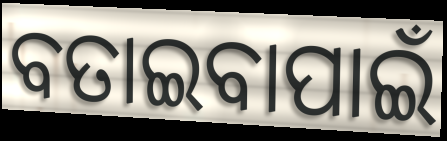
ବତାଇବାପାଇଁ